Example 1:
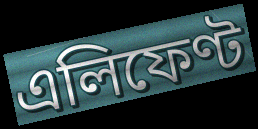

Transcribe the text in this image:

এলিফেণ্ট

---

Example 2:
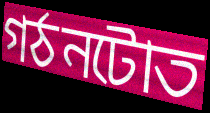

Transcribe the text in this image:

গঠনটোত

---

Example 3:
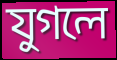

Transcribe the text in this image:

যুগলে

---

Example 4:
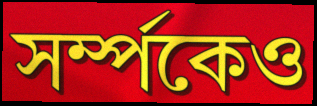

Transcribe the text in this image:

সৰ্ম্পকেও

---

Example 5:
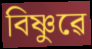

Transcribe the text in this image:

বিষ্ণুৱে